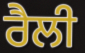
ਰੈਲੀ